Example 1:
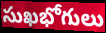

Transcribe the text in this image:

సుఖభోగులు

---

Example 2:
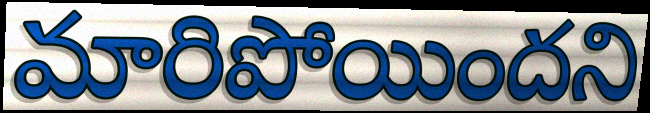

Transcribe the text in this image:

మారిపోయిందని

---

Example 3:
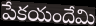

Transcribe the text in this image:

పేకయందేమి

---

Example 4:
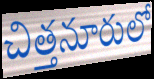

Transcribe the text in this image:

చిత్తనూరులో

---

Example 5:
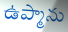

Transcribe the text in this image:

ఉప్మాను